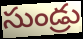
సుండ్రు